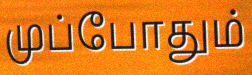
முப்போதும்